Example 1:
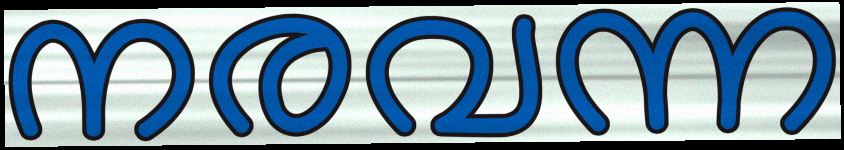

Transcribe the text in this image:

നരവന്ന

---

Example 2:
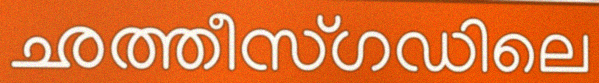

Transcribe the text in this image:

ഛത്തീസ്ഗഡിലെ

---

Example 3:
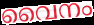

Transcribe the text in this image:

വൈനം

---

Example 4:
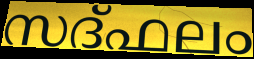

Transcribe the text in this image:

സദ്ഫലം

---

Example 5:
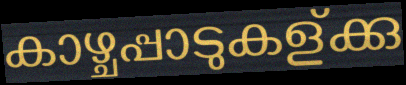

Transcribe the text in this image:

കാഴ്ചപ്പാടുകള്ക്കു